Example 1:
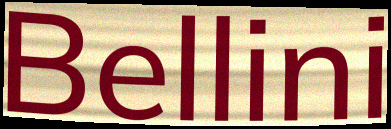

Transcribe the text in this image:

Bellini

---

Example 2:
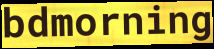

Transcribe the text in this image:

bdmorning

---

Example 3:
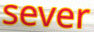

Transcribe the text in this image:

sever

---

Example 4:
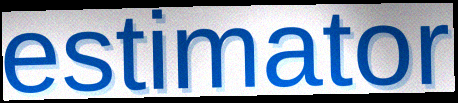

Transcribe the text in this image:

estimator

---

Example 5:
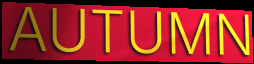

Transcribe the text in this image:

AUTUMN